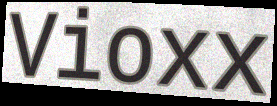
Vioxx